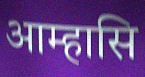
आम्हासि